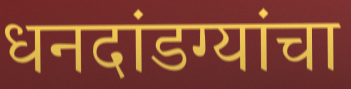
धनदांडग्यांचा